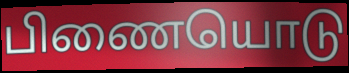
பிணையொடு